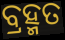
ବ୍ରହ୍ମତ